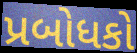
પ્રબોધકો